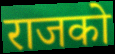
राजको